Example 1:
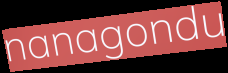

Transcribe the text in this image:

nanagondu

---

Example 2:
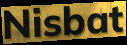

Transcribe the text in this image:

Nisbat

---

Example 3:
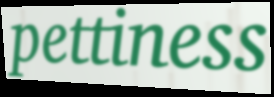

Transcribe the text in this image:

pettiness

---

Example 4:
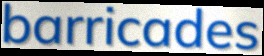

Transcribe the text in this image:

barricades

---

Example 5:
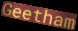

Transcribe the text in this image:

Geetham